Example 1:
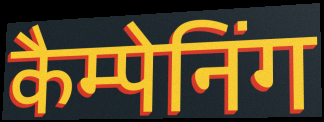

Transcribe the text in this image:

कैम्पेनिंग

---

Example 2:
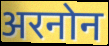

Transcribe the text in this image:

अरनोन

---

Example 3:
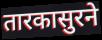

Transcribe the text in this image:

तारकासुरने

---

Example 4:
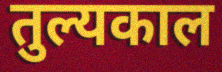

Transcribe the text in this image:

तुल्यकाल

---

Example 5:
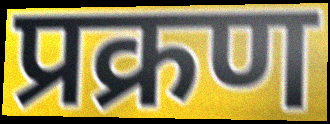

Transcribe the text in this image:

प्रक्रण